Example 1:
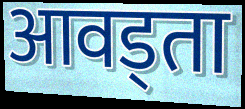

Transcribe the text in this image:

आवड्ता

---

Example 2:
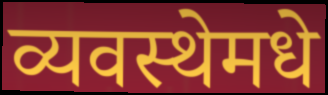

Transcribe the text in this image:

व्यवस्थेमधे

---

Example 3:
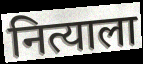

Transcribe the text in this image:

नित्याला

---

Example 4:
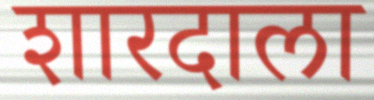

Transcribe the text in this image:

शारदाला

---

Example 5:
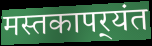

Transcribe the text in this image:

मस्तकापर्यंत